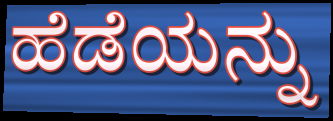
ಹೆಡೆಯನ್ನು